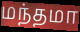
மந்தமா